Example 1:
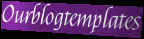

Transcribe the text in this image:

Ourblogtemplates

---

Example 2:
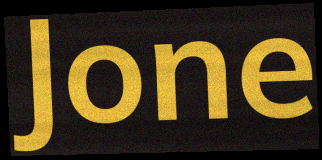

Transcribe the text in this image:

Jone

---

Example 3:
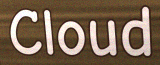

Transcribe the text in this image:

Cloud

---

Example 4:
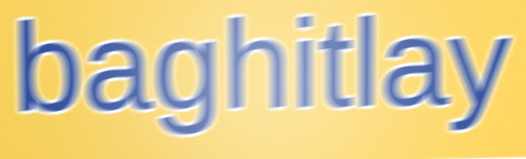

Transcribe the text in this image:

baghitlay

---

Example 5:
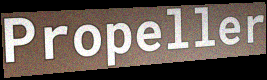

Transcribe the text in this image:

Propeller